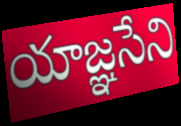
యాజ్ఞసేని